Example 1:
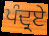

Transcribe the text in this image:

ਪੰਦ੍ਰਏ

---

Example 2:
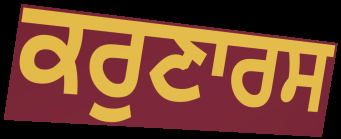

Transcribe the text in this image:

ਕਰੁਣਾਰਸ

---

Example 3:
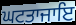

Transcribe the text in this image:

ਘਟਤਾਜਾਇ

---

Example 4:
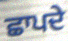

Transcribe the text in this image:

ਛਾਪਦੇ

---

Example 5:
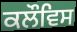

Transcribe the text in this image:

ਕਲੌਵਿਸ